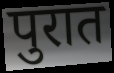
पुरात